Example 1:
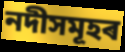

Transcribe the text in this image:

নদীসমূহৰ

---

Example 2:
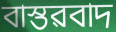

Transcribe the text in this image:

বাস্তৱবাদ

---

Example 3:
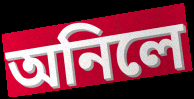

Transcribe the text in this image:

অনিলে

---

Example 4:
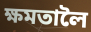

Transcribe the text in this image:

ক্ষমতালৈ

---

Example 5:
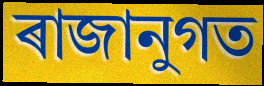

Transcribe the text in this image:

ৰাজানুগত